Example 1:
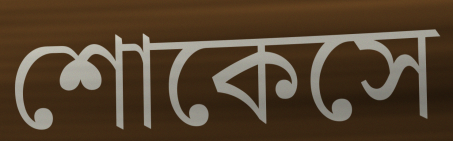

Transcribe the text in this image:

শোকেসে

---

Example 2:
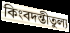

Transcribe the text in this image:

কিংবদন্তীতুল্য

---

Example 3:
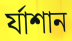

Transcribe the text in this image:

র্যাশান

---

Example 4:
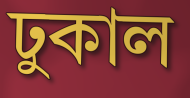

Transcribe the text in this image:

ঢুকাল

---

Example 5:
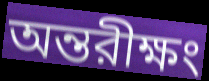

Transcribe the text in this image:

অন্তরীক্ষং